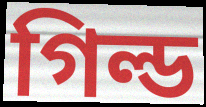
গিল্ড